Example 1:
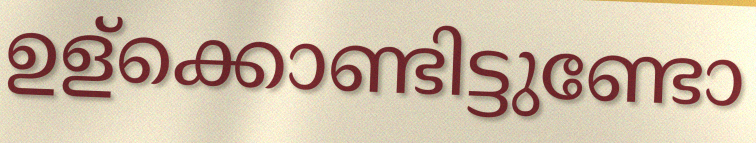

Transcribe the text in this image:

ഉള്ക്കൊണ്ടിട്ടുണ്ടോ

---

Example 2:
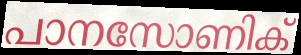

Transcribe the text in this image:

പാനസോണിക്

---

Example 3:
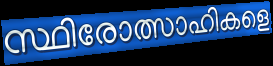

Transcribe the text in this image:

സ്ഥിരോത്സാഹികളെ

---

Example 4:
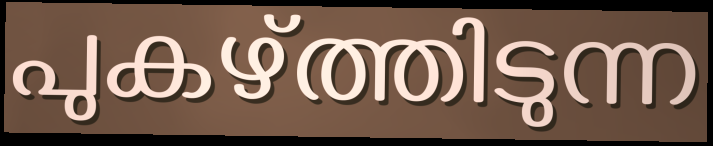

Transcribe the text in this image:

പുകഴ്ത്തിടുന്ന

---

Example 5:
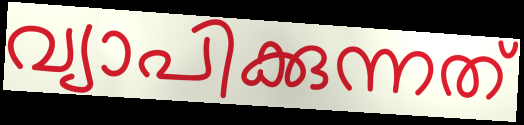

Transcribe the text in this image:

വ്യാപിക്കുന്നത്